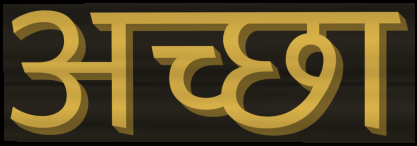
अच्छा